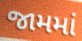
જામમાં